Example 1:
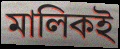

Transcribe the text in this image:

মালিকই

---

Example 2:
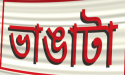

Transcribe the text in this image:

ভাঙাটা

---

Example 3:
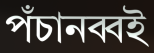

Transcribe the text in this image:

পঁচানব্বই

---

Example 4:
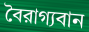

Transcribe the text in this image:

বৈরাগ্যবান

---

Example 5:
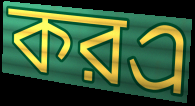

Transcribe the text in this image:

করএ